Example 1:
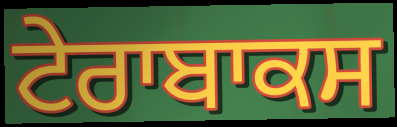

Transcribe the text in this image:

ਟੇਰਾਬਾਕਸ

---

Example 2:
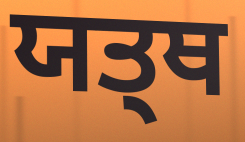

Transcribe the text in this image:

ਯਤ੍ਥ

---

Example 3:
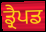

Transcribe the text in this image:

ਡ੍ਰੈਪਡ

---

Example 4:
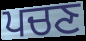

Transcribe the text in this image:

ਪਚਣ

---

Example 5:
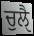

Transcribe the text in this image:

ਚੁਲੈੑ